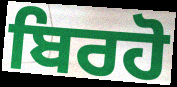
ਬਿਰਹੋ